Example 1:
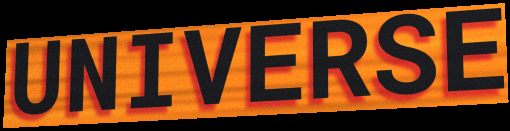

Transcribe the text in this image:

UNIVERSE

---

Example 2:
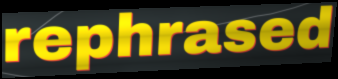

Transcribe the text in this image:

rephrased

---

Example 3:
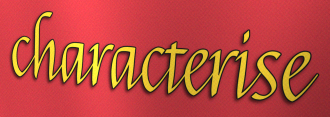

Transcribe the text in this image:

characterise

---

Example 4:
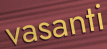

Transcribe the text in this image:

vasanti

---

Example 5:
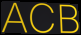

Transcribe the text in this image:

ACB